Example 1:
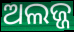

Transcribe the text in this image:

ଅଲଜ୍ଜ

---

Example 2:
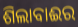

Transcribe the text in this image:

ଶିଲାବାଈର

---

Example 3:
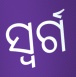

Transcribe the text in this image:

ସ୍ବର୍ଗ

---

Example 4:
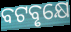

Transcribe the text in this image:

ବଟବୃକ୍ଷେ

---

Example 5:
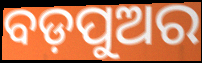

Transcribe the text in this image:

ବଡ଼ପୁଅର